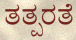
ತತ್ಪರತೆ